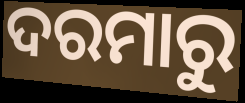
ଦରମାରୁ